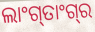
ଲାଂଗ୍‍ତାଂଗ୍‍ର